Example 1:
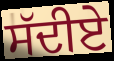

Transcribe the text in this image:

ਸੱਦੀਏ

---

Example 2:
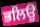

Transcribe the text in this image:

ਭਲਿਉ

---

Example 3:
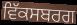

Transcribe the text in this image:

ਵਿੱਕਸਬਰਗ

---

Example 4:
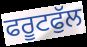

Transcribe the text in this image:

ਫਰੂਟਫੁੱਲ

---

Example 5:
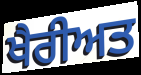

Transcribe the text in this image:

ਖੈਰੀਅਤ